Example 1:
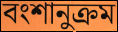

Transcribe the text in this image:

বংশানুক্রম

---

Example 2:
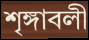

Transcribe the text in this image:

শৃঙ্গাবলী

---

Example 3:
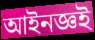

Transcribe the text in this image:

আইনজ্ঞই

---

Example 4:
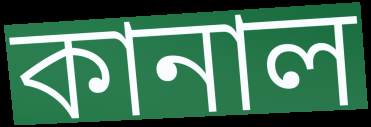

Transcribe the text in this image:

কানাল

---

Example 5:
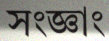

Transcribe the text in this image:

সংজ্ঞাং